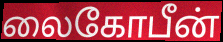
லைகோபீன்